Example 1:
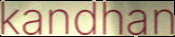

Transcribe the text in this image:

kandhan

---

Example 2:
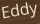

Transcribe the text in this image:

Eddy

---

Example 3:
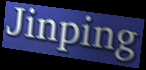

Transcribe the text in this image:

Jinping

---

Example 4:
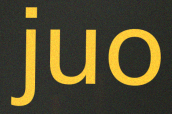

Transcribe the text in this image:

juo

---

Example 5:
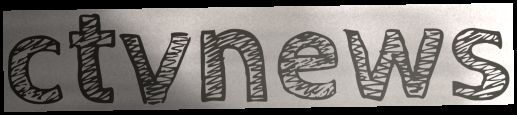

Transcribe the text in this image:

ctvnews